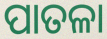
ପାତଳା